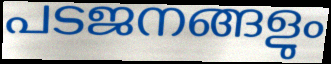
പടജനങ്ങളും